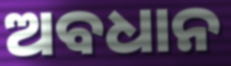
ଅବଧାନ